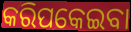
କରିପକେଇବା